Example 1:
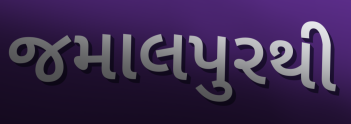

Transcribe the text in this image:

જમાલપુરથી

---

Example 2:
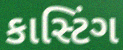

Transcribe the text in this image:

કાસ્ટિંગ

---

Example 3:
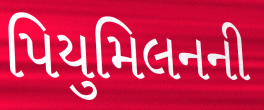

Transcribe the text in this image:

પિયુમિલનની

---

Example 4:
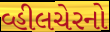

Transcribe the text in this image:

વ્હીલચેરનો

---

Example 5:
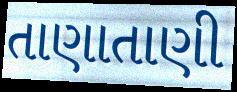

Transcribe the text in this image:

તાણાતાણી